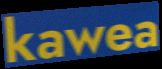
kawea